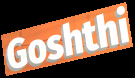
Goshthi